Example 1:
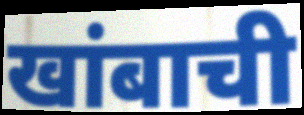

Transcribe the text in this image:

खांबाची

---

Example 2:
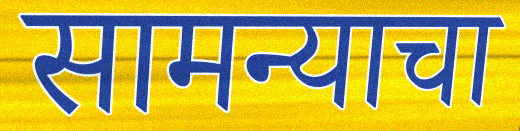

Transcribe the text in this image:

सामन्याचा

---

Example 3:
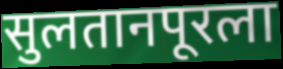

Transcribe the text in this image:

सुलतानपूरला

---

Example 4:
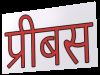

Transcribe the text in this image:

प्रीबस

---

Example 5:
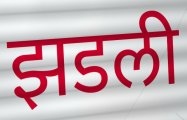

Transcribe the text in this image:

झडली